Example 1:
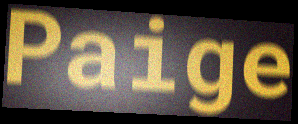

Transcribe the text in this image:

Paige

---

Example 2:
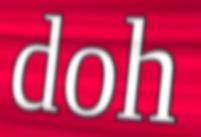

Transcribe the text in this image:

doh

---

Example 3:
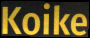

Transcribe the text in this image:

Koike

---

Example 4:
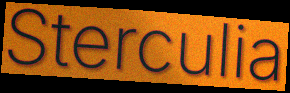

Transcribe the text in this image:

Sterculia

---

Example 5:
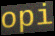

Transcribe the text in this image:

opi